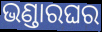
ଭଣ୍ଡାରଘର